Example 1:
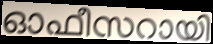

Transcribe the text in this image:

ഓഫീസറായി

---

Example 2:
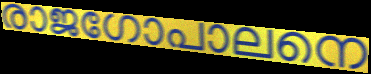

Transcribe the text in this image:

രാജഗോപാലനെ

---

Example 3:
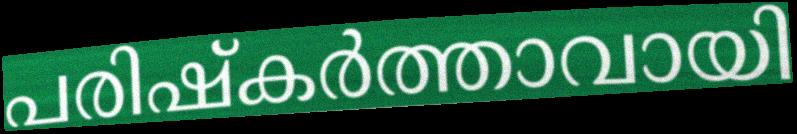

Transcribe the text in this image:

പരിഷ്കർത്താവായി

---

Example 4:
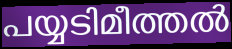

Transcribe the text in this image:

പയ്യടിമീത്തൽ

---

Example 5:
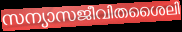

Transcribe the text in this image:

സന്യാസജീവിതശൈലി